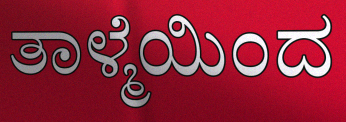
ತಾಳ್ಮೆಯಿಂದ